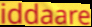
iddaare